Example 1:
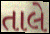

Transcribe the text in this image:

તાલે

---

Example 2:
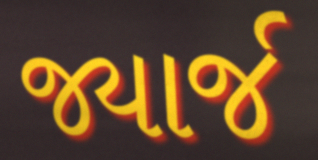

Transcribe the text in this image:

જ્યાર્જ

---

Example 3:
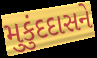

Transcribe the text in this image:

મુકુંદદાસને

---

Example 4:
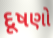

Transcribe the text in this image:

દૂષણો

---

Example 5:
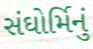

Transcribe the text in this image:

સંઘોર્મિનું